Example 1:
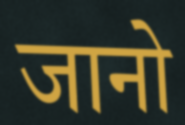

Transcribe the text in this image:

जानो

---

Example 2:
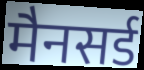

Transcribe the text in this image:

मैनसर्ड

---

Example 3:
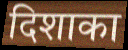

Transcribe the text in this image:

दिशाका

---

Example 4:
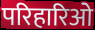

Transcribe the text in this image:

परिहारिओ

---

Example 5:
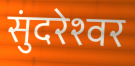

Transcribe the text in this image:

सुंदरेश्वर